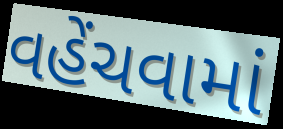
વહેંચવામાં